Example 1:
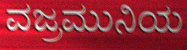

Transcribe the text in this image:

ವಜ್ರಮುನಿಯ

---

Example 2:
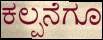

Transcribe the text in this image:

ಕಲ್ಪನೆಗೂ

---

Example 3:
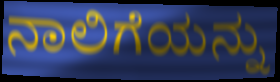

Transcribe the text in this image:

ನಾಲಿಗೆಯನ್ನು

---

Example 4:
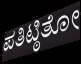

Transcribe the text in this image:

ಪತಿಟ್ಠಿತೋ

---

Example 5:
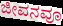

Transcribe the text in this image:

ಜೀವನವೂ